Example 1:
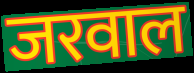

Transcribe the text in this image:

जरवाल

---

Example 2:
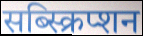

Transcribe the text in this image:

सब्स्क्रिप्शन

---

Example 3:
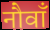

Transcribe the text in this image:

नौवाँ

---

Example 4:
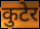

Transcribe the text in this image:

कुटेर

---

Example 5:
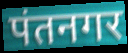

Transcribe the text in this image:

पंतनगर